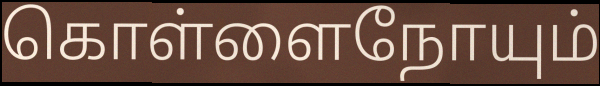
கொள்ளைநோயும்